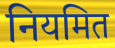
नियमित